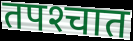
तपश्चात